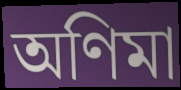
অণিমা